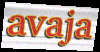
avaja